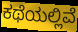
ಕಥೆಯಲ್ಲಿವೆ